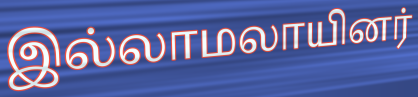
இல்லாமலாயினர்